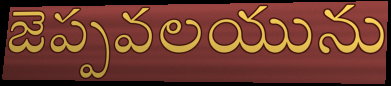
జెప్పవలయును